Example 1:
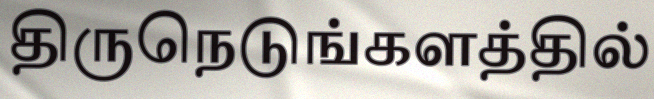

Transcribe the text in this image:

திருநெடுங்களத்தில்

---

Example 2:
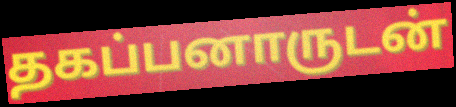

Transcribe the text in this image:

தகப்பனாருடன்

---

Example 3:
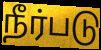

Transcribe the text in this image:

நீர்படு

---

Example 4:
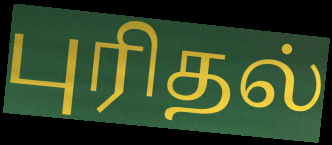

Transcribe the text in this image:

புரிதல்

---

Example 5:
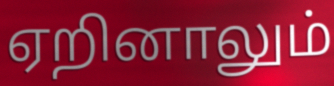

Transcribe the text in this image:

ஏறினாலும்